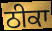
ਠੀਕਾ